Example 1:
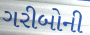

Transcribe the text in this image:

ગરીબોની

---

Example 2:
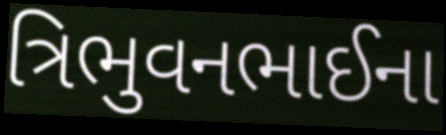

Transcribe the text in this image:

ત્રિભુવનભાઈના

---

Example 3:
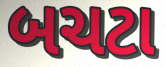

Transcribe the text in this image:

બચટા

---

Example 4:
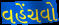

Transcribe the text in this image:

વહેંચવો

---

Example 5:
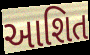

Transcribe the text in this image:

આશિત